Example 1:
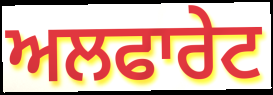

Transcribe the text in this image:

ਅਲਫਾਰੇਟ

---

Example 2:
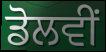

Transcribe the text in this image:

ਡੋਲਵੀਂ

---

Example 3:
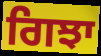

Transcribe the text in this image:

ਗਿਝਾ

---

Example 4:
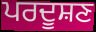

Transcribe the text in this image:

ਪਰਦੂਸ਼ਣ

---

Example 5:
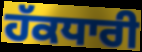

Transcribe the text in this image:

ਹੱਕਧਾਰੀ